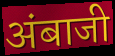
अंबाजी